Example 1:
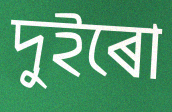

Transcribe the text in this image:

দুইৰো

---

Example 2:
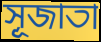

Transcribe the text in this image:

সূজাতা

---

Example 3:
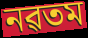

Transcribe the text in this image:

নৱতম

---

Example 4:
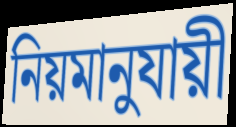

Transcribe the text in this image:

নিয়মানুযায়ী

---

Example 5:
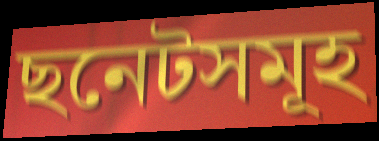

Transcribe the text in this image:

ছনেটসমূহ